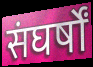
संघर्षों